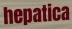
hepatica